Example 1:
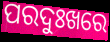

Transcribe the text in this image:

ପରଦୁଃଖରେ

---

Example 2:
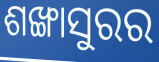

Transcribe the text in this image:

ଶଙ୍ଖାସୁରର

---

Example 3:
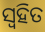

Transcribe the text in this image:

ସ୍ୱହିତ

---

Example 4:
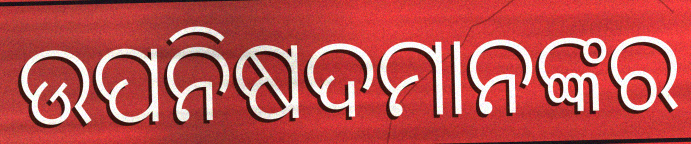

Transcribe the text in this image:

ଉପନିଷଦମାନଙ୍କର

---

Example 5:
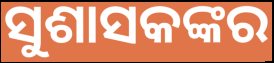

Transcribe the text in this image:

ସୁଶାସକଙ୍କର